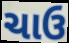
ચાઉ